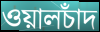
ওয়ালচাঁদ